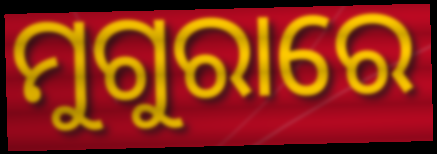
ମୁଗୁରାରେ